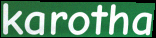
karotha